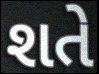
શતે